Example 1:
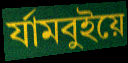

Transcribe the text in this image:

র্যামবুইয়ে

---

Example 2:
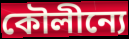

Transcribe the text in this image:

কৌলীন্যে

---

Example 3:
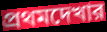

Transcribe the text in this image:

প্রথমদেখার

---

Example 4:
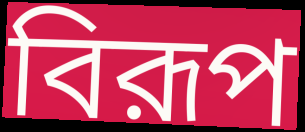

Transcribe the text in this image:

বিরূপ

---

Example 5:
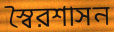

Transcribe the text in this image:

স্বৈরশাসন